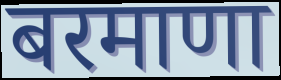
बरमाणा